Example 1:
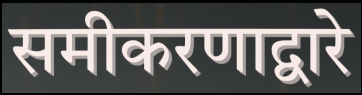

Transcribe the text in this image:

समीकरणाद्वारे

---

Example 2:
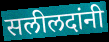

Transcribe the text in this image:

सलीलदांनी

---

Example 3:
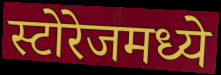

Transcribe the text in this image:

स्टोरेजमध्ये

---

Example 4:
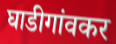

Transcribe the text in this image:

घाडीगांवकर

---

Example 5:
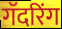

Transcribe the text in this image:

गॅदरिंग